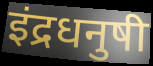
इंद्रधनुषी